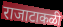
राजाटाकळी